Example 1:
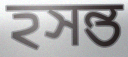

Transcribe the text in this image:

হসন্ত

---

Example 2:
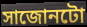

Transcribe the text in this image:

সাজোনটো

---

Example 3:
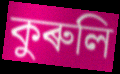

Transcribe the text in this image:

কুৰুলি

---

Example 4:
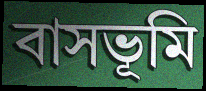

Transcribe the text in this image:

বাসভূমি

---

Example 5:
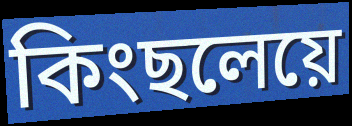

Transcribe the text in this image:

কিংছলেয়ে